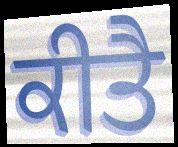
ਕੀਤੈ